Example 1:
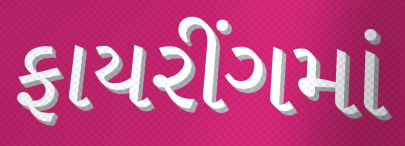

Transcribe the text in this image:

ફાયરીંગમાં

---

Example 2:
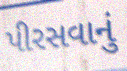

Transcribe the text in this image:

પીરસવાનું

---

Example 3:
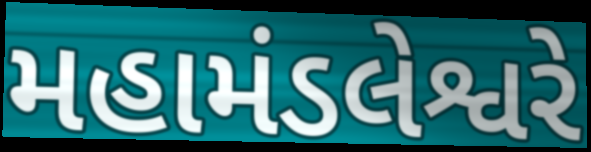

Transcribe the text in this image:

મહામંડલેશ્વરે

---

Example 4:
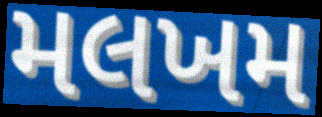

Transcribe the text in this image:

મલખમ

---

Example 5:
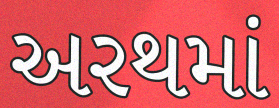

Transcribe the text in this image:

અરથમાં